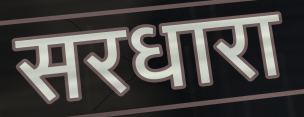
सरधारा